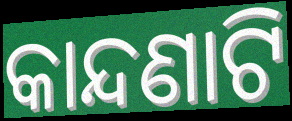
କାନ୍ଦଣାଟି